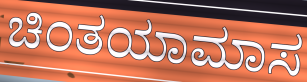
ಚಿಂತಯಾಮಾಸ